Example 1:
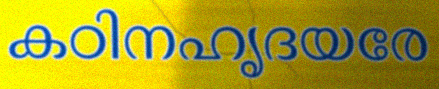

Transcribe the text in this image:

കഠിനഹൃദയരേ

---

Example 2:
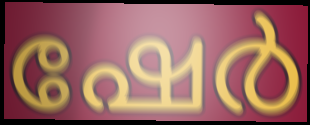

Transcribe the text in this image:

ഷേർ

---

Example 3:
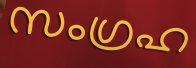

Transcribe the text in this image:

സംഗ്രഹ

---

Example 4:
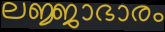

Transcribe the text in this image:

ലജ്ജാഭാരം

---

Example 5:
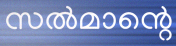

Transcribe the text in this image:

സൽമാന്റെ